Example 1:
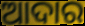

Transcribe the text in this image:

ଆଦାର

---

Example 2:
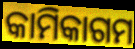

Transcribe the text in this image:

କାମିକାଗମ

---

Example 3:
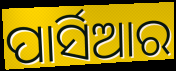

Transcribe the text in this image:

ପାର୍ସିଆର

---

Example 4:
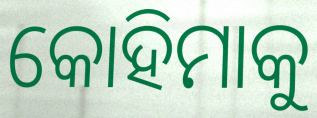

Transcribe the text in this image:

କୋହିମାକୁ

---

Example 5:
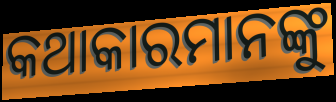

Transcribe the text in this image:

କଥାକାରମାନଙ୍କୁ